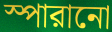
স্পারানো